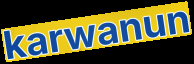
karwanun